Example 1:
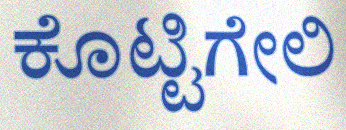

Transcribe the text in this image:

ಕೊಟ್ಟಿಗೇಲಿ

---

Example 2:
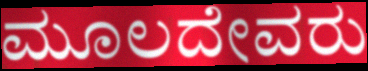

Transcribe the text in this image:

ಮೂಲದೇವರು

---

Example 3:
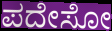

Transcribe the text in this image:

ಪದೇಸೋ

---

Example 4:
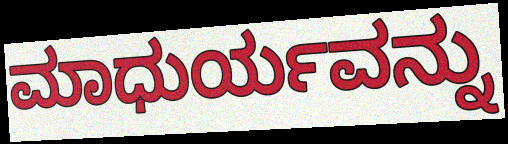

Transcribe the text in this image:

ಮಾಧುರ್ಯವನ್ನು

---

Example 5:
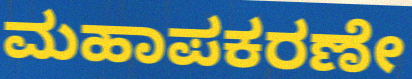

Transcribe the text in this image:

ಮಹಾಪಕರಣೇ